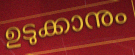
ഉടുക്കാനും